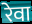
रेवा